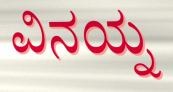
ವಿನಯ್ನ